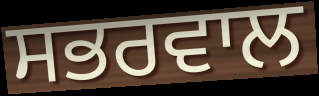
ਸਭਰਵਾਲ